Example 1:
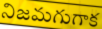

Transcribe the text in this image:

నిజమగుగాక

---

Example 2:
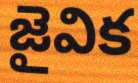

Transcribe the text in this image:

జైవిక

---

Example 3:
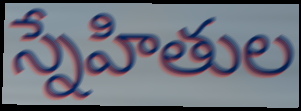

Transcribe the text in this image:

స్నేహితుల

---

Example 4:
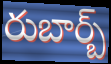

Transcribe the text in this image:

రుబార్బ్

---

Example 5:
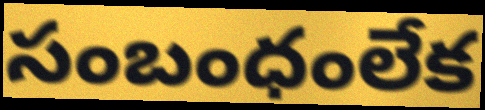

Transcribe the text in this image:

సంబంధంలేక